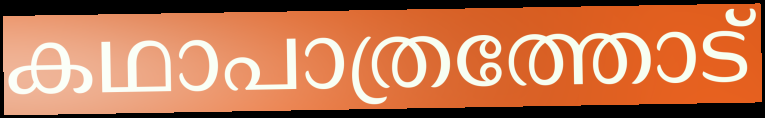
കഥാപാത്രത്തോട്